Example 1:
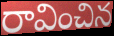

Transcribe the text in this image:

రావించిన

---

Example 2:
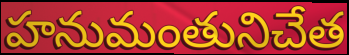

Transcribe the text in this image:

హనుమంతునిచేత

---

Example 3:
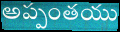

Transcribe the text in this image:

అప్పంతయు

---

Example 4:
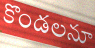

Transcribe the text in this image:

కొండలనూ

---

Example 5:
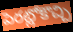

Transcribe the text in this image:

పెరట్లోకొచ్చి